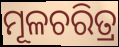
ମୂଳଚରିତ୍ର